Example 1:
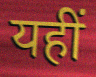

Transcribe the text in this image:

यहीं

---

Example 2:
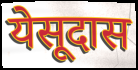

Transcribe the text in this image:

येसूदास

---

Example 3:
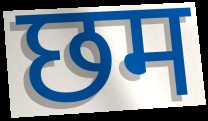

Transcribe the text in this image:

छम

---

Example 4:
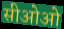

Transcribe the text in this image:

सीओओ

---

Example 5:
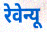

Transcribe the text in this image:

रेवेन्यू